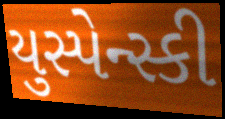
યુસ્પેન્સ્કી